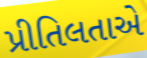
પ્રીતિલતાએ